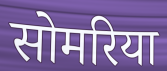
सोमरिया